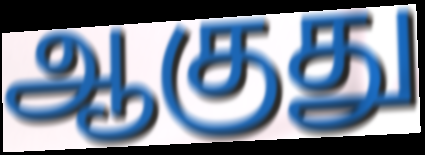
ஆகுது